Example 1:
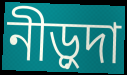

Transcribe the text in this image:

নীড়ুদা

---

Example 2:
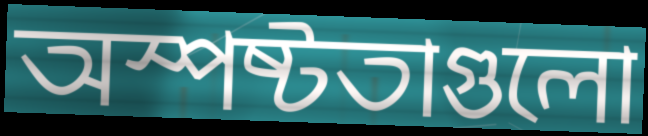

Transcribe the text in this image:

অস্পষ্টতাগুলো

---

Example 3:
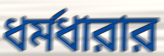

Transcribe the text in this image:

ধর্মধারার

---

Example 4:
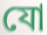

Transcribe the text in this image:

যো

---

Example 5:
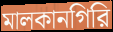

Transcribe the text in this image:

মালকানগিরি